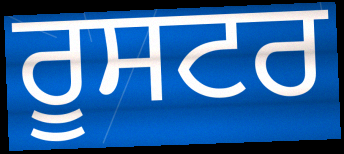
ਰੂਸਟਰ